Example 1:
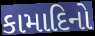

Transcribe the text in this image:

કામાદિનો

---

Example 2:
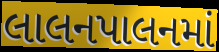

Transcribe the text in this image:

લાલનપાલનમાં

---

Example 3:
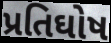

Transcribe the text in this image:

પ્રતિઘોષ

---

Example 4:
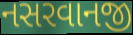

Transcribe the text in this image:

નસરવાનજી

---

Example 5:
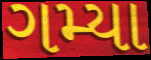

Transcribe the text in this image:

ગમ્યા